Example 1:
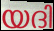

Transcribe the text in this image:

യദി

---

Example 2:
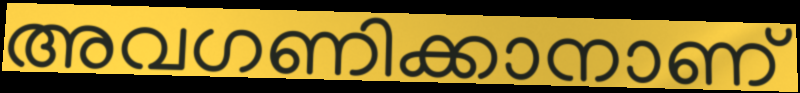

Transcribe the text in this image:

അവഗണിക്കാനാണ്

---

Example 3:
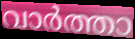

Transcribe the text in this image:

വാർത്താ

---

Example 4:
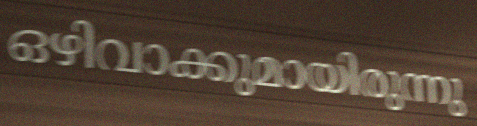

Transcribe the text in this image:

ഒഴിവാക്കുമായിരുന്നു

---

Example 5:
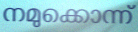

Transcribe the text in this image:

നമുക്കൊന്ന്